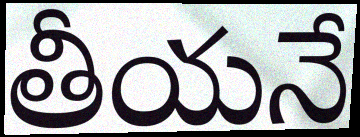
తీయనే